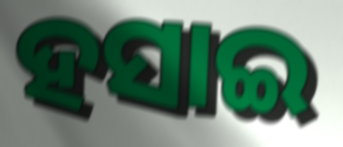
ହସାଇ